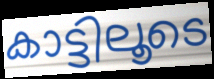
കാട്ടിലൂടെ